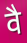
वै